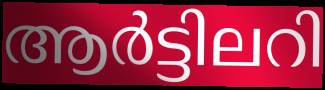
ആർട്ടിലറി